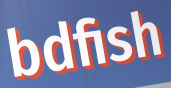
bdfish